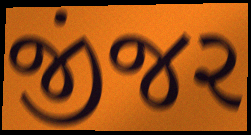
જીંજર